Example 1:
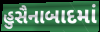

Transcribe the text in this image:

હુસૈનાબાદમાં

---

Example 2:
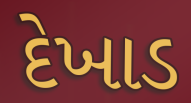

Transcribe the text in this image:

દેખાડ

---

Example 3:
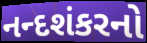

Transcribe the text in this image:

નન્દશંકરનો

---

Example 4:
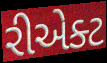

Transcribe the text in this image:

રીએક્ટ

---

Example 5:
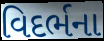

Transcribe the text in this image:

વિદર્ભના